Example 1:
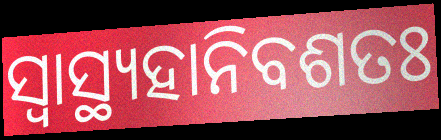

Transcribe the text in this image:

ସ୍ୱାସ୍ଥ୍ୟହାନିବଶତଃ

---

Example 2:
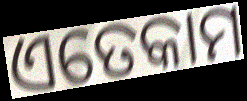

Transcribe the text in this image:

ଏତେକାମ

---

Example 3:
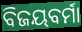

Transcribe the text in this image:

ବିଜୟବର୍ମା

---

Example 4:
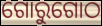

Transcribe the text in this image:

ଗୋରୁଗୋଠ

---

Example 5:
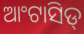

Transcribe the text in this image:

ଆଂଟାସିଡ୍